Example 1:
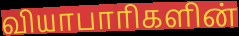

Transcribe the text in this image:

வியாபாரிகளின்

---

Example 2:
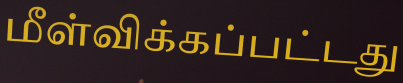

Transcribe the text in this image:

மீள்விக்கப்பட்டது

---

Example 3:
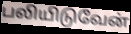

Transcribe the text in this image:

பலியிடுவேன்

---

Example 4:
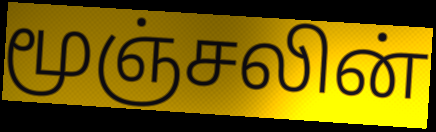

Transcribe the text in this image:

மூஞ்சலின்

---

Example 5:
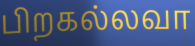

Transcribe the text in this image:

பிறகல்லவா